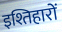
इश्तिहारों